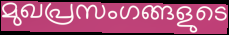
മുഖപ്രസംഗങ്ങളുടെ